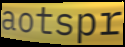
aotspr